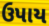
ઉપાય